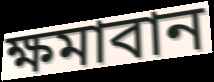
ক্ষমাবান